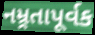
નમ્ર્રતાપૂર્વક